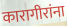
कारागीरांना